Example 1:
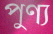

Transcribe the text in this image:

পুণ্য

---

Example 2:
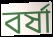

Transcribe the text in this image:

বৰ্ষা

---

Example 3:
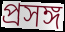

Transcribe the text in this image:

প্ৰসঙ্গ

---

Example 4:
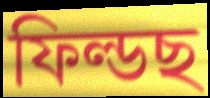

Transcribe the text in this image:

ফিল্ডছ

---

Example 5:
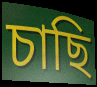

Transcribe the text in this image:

চাছি